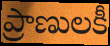
ప్రాణులకీ